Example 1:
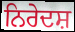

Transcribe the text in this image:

ਨਿਰੇਦਸ਼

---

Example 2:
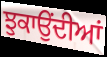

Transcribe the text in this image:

ਝੁਕਾਉਂਦੀਆਂ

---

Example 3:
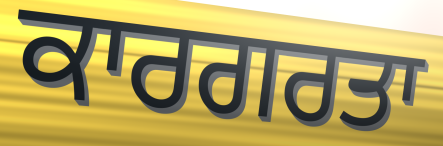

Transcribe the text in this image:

ਕਾਰਗਰਤਾ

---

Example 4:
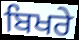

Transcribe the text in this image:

ਬਿਖਰੇ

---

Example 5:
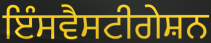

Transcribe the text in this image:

ਇੰਸਵੈਸਟੀਗੇਸ਼ਨ